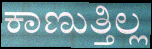
ಕಾಣುತ್ತಿಲ್ಲ